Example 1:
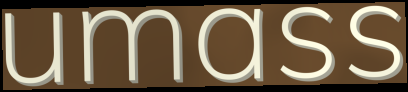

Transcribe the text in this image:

umass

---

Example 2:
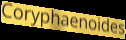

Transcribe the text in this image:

Coryphaenoides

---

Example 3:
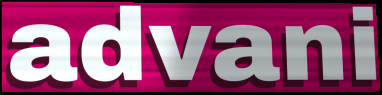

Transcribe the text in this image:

advani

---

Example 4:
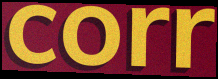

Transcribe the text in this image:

corr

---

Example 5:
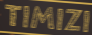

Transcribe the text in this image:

TIMIZI